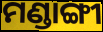
ମଣ୍ଡାଙ୍ଗୀ